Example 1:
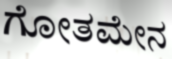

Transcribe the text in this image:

ಗೋತಮೇನ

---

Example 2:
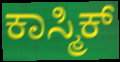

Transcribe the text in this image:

ಕಾಸ್ಮಿಕ್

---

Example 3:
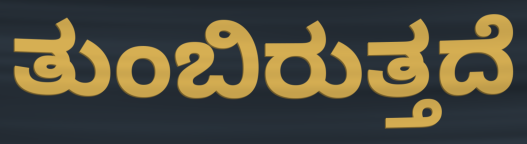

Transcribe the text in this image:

ತುಂಬಿರುತ್ತದೆ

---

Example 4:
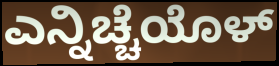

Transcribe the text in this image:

ಎನ್ನಿಚ್ಚೆಯೊಳ್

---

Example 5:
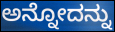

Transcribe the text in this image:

ಅನ್ನೋದನ್ನು